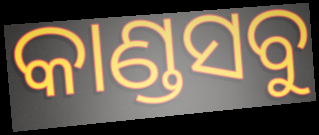
କାଣ୍ଡସବୁ